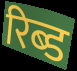
रिब्ड